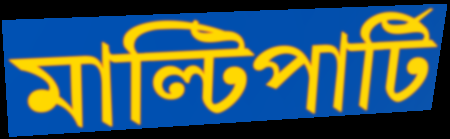
মাল্টিপার্টি